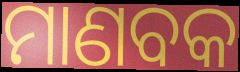
ମାଣବକ